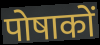
पोषाकों